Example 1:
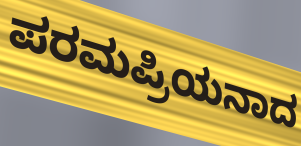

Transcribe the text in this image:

ಪರಮಪ್ರಿಯನಾದ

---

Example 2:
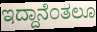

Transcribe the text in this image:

ಇದ್ದಾನೆಂತಲೂ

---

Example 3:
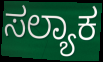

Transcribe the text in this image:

ಸಲ್ಯಾಕ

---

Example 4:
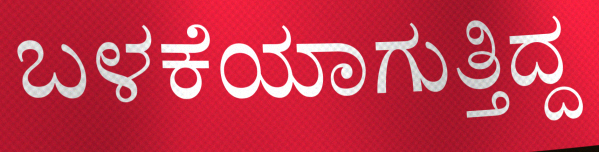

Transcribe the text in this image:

ಬಳಕೆಯಾಗುತ್ತಿದ್ದ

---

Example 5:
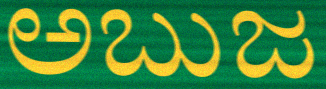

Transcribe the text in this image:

ಅಬುಜ